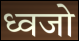
ध्वजो